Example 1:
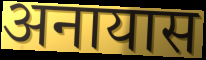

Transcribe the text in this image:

अनायास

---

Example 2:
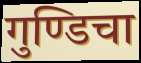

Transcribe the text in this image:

गुण्डिचा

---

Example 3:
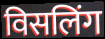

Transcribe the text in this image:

विसलिंग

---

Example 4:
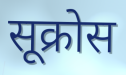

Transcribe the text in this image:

सूक्रोस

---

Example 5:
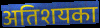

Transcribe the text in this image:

अतिशयका